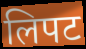
लिपट